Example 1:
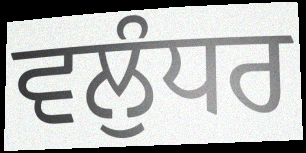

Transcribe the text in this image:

ਵਲੁੰਧਰ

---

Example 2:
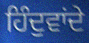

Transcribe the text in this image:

ਹਿੰਦੁਵਾਂਦੇ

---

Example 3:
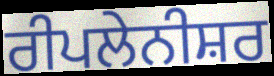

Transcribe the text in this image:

ਰੀਪਲੇਨੀਸ਼ਰ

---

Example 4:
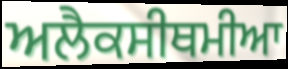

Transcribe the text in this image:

ਅਲੈਕਸੀਥਮੀਆ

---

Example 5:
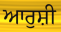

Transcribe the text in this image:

ਆਰੁਸ਼ੀ